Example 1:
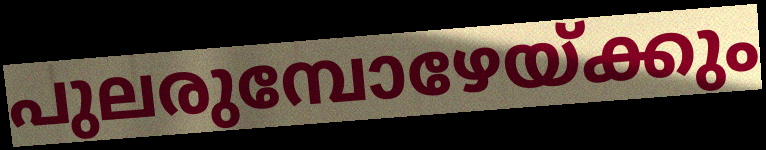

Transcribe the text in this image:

പുലരുമ്പോഴേയ്ക്കും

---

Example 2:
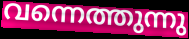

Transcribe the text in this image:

വന്നെത്തുന്നു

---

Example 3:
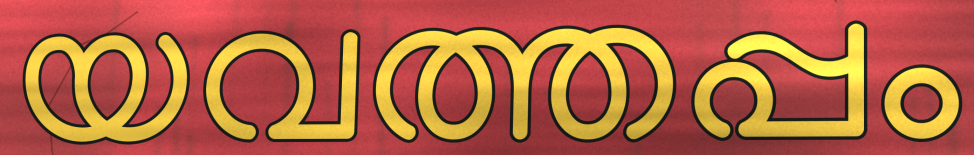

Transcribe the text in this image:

യവത്തപ്പം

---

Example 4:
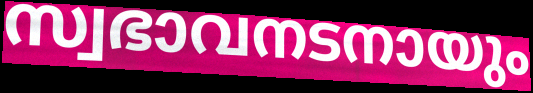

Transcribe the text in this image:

സ്വഭാവനടനായും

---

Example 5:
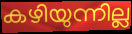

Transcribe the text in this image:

കഴിയുന്നില്ല